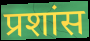
प्रशांस